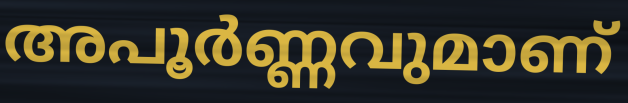
അപൂർണ്ണവുമാണ്